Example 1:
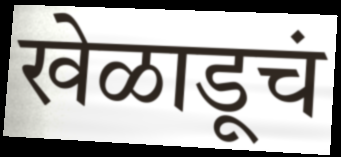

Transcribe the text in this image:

खेळाडूचं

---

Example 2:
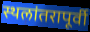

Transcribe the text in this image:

स्थलांतरापूर्वी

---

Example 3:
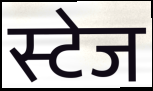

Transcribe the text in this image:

स्टेज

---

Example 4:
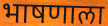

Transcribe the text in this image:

भाषणाला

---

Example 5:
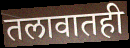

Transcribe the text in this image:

तलावातही